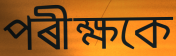
পৰীক্ষকে